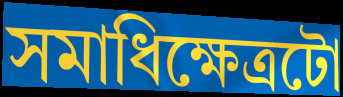
সমাধিক্ষেত্ৰটো